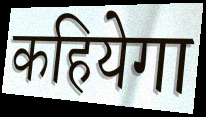
कहियेगा